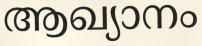
ആഖ്യാനം